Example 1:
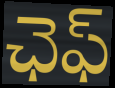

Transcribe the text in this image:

ఛెఫ్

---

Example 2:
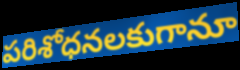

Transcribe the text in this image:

పరిశోధనలకుగానూ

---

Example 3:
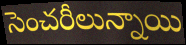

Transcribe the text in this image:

సెంచరీలున్నాయి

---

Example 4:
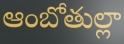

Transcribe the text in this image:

ఆంబోతుల్లా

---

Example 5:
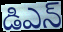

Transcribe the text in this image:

డిఎన్